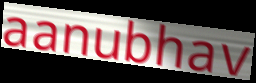
aanubhav